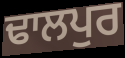
ਢਾਲਪੁਰ